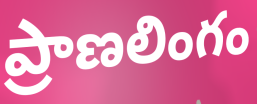
ప్రాణలింగం